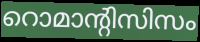
റൊമാന്റിസിസം